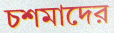
চশমাদের